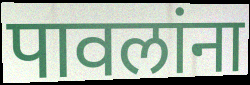
पावलांना